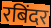
रबिंदर